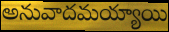
అనువాదమయ్యాయి